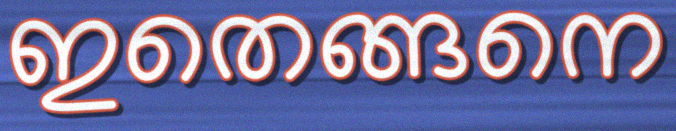
ഇതെങ്ങനെ